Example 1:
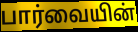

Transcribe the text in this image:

பார்வையின்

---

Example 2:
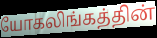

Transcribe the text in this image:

யோகலிங்கத்தின்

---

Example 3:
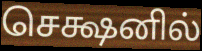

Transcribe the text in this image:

செக்ஷனில்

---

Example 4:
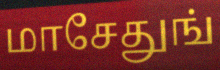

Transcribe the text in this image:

மாசேதுங்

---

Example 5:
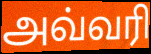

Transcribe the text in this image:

அவ்வரி